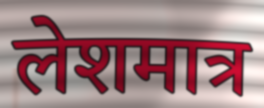
लेशमात्र